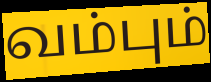
வம்பும்